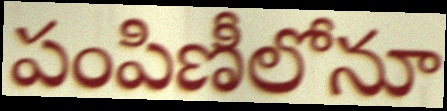
పంపిణీలోనూ